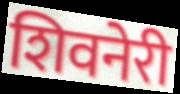
शिवनेरी